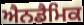
ਐਨਡੈਮਿਕ